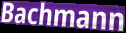
Bachmann